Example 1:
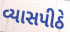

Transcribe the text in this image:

વ્યાસપીઠે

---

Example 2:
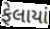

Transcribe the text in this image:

ફેલાયાં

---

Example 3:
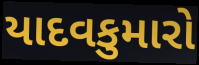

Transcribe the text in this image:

યાદવકુમારો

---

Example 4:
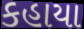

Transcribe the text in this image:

કહાયા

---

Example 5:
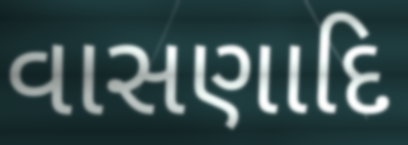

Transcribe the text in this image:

વાસણાદિ